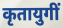
कृतायुगीं